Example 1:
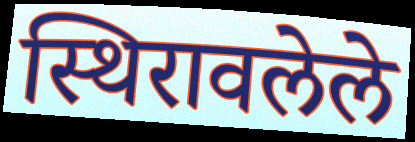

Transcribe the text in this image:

स्थिरावलेले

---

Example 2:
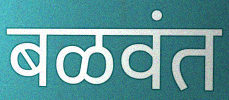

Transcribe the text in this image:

बळवंत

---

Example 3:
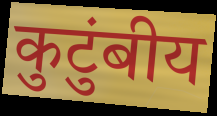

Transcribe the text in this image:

कुटुंबीय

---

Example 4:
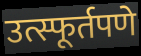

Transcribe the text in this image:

उत्स्फूर्तपणे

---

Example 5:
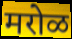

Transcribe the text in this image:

मरोळ